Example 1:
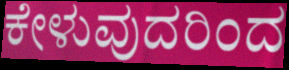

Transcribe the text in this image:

ಕೇಳುವುದರಿಂದ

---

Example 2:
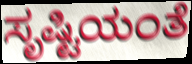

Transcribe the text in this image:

ಸೃಷ್ಟಿಯಂತೆ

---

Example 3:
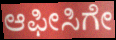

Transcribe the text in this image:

ಆಫೀಸಿಗೇ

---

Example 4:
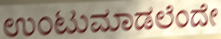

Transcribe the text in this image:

ಉಂಟುಮಾಡಲೆಂದೇ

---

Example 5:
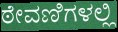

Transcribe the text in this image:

ಠೇವಣಿಗಳಲ್ಲಿ